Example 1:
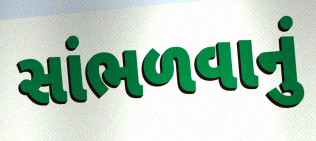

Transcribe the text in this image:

સાંભળવાનું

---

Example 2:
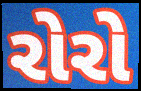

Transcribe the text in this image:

રોરો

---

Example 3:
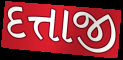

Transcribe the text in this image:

દત્તાજી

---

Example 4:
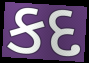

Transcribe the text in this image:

કદ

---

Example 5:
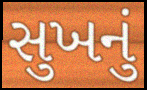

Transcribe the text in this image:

સુખનું